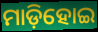
ମାଡ଼ିହୋଇ